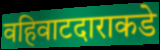
वहिवाटदाराकडे